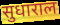
सुधाराल